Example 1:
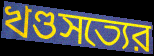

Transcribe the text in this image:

খণ্ডসত্যের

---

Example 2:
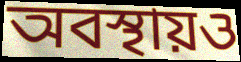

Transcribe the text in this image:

অবস্থায়ও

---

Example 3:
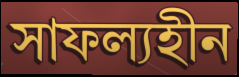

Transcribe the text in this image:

সাফল্যহীন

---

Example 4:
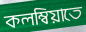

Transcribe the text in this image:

কলম্বিয়াতে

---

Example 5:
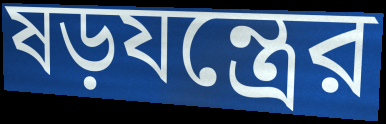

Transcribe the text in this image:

ষড়যন্ত্রের